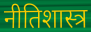
नीतिशास्त्र